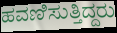
ಹವಣಿಸುತ್ತಿದ್ದರು